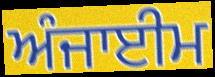
ਅੰਜਾਈਮ